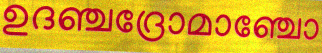
ഉദഞ്ചദ്രോമാഞ്ചോ